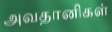
அவதானிகள்